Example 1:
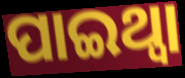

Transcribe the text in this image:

ପାଇଥ୍ବା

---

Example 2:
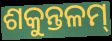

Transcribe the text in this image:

ଶକୁନ୍ତଳମ୍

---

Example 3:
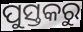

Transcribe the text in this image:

ପୁସ୍ତକରୁ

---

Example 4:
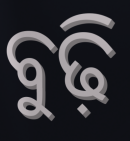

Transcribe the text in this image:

ବୁଢ଼ି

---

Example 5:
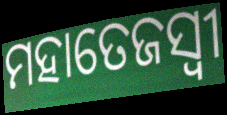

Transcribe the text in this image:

ମହାତେଜସ୍ୱୀ